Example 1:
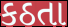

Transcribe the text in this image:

કઠતા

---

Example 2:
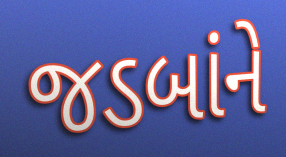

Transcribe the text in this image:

જડબાંને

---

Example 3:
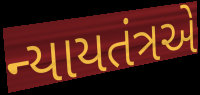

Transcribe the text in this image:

ન્યાયતંત્રએ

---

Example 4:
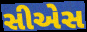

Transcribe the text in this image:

સીએસ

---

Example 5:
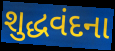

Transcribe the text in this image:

શુદ્ધવંદના